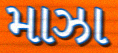
માઝા